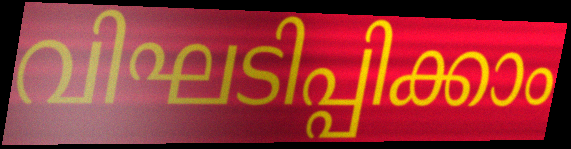
വിഘടിപ്പിക്കാം